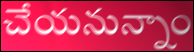
చేయనున్నాం